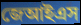
জেআইএস